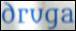
druga